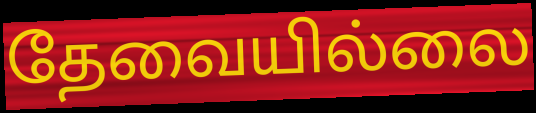
தேவையில்லை